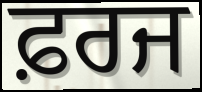
ਫ਼ਰਜ